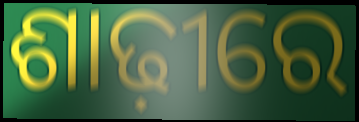
ଶାଢ଼ୀରେ